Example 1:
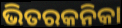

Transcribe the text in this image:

ଭିତରକନିକା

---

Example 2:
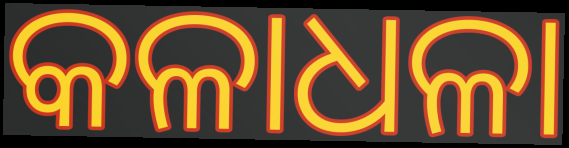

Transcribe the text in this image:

କଳାଧଳା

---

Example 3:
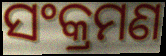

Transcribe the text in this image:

ସଂକ୍ରମଣ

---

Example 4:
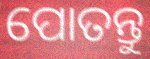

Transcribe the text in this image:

ପୋତନ୍ତୁ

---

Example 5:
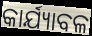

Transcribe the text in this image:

କାର୍ଯ୍ୟାବଳ